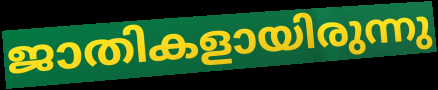
ജാതികളായിരുന്നു